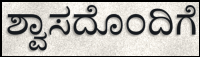
ಶ್ವಾಸದೊಂದಿಗೆ